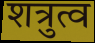
शत्रुत्व